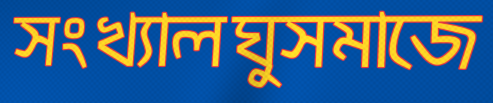
সংখ্যালঘুসমাজে